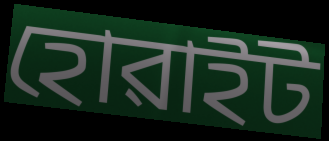
হোৱাইট